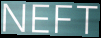
NEFT